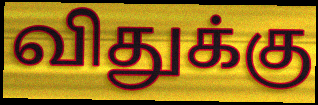
விதுக்கு